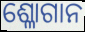
ଶ୍ଳୋଗାନ